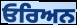
ਓਰਿਅਨ